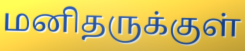
மனிதருக்குள்